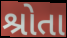
શ્રોતા